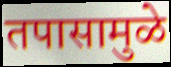
तपासामुळे